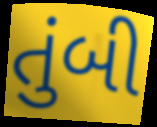
તુંબી